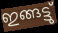
ഇങ്ങട്ടു്